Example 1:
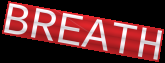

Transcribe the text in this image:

BREATH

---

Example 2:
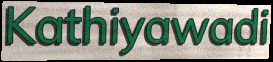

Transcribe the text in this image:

Kathiyawadi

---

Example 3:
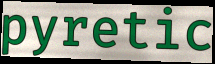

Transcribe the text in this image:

pyretic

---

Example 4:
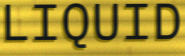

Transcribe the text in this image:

LIQUID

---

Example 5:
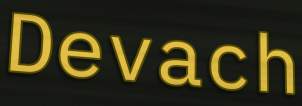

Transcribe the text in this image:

Devach